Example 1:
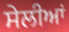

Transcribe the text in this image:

ਸੇਲੀਆਂ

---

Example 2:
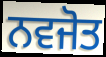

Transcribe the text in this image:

ਨਵਜੋਤ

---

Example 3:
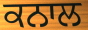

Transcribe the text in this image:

ਕਨਾਲ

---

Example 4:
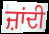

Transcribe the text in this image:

ਜ਼ਾਂਦੀ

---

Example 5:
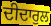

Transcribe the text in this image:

ਦੀਦਾਰੁਲ